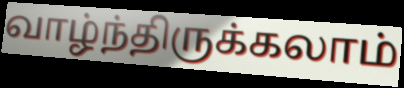
வாழ்ந்திருக்கலாம்